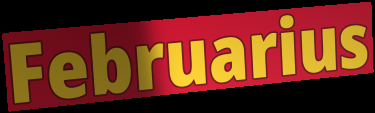
Februarius